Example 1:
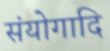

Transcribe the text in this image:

संयोगादि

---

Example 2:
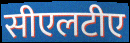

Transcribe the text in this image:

सीएलटीए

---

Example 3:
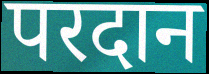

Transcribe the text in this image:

परदान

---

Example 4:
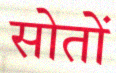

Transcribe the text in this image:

सोतों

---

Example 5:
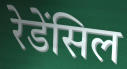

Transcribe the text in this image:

रेडेंसिल